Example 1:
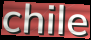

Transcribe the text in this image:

chile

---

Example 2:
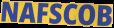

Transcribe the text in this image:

NAFSCOB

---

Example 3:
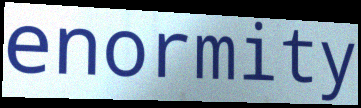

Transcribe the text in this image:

enormity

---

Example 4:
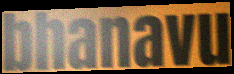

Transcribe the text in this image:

bhanavu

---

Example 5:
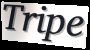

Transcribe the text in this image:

Tripe